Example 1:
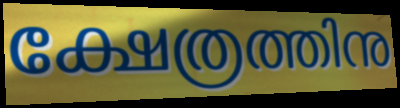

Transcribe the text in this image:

ക്ഷേത്രത്തിനു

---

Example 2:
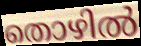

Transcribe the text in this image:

തൊഴിൽ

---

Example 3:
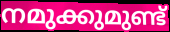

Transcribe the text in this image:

നമുക്കുമുണ്ട്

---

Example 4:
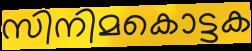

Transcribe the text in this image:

സിനിമകൊട്ടക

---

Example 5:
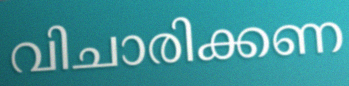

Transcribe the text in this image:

വിചാരിക്കണ